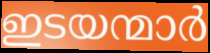
ഇടയന്മാർ